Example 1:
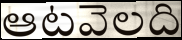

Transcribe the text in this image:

ఆటవెలది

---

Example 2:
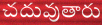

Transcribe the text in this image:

చదువుతారు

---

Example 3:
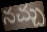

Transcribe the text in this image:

నచ్చు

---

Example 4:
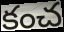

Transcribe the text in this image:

కంచ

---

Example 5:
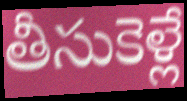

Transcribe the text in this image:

తీసుకెళ్లే